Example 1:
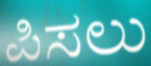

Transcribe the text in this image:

ಪಿಸಲು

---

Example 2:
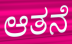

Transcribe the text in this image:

ಆತನೆ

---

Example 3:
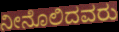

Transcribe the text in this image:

ನೀನೊಲಿದವರು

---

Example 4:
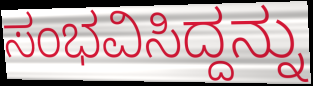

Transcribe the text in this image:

ಸಂಭವಿಸಿದ್ದನ್ನು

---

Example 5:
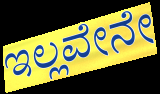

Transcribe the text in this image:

ಇಲ್ಲವೇನೇ